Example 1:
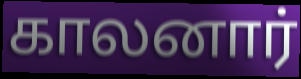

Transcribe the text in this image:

காலனார்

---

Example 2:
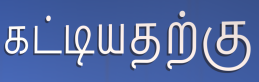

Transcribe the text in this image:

கட்டியதற்கு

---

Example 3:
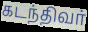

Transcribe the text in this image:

கடந்திவர்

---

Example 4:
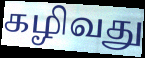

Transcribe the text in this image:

கழிவது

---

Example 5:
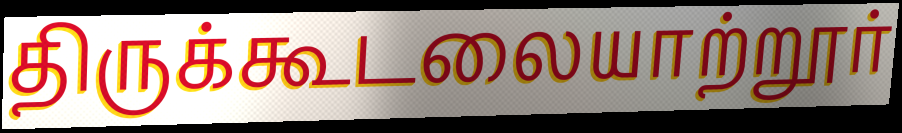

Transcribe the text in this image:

திருக்கூடலையாற்றூர்